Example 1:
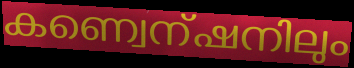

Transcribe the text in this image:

കണ്വെന്ഷനിലും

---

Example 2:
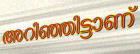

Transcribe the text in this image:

അറിഞ്ഞിട്ടാണ്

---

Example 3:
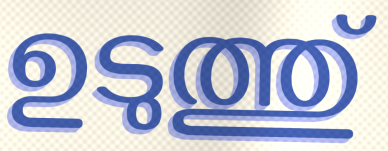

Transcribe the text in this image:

ഉടുത്തു്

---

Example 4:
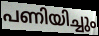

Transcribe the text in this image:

പണിയിച്ചും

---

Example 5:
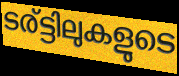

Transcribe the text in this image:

ടര്ട്ടിലുകളുടെ